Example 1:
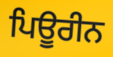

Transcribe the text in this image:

ਪਿਊਰੀਨ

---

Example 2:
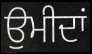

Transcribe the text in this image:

ਉਮੀਦਾਂ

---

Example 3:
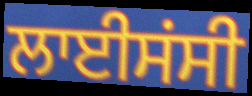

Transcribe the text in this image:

ਲਾਈਸਂਸੀ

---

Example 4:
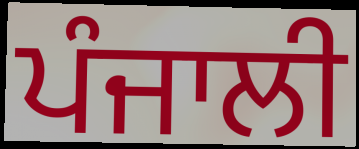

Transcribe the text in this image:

ਪੰਜਾਲੀ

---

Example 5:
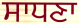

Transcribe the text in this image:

ਸਾਧਣਾ